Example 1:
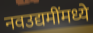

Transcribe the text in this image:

नवउद्यमींमध्ये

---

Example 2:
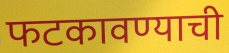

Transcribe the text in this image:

फटकावण्याची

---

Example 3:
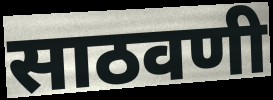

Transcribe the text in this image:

साठवणी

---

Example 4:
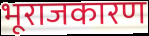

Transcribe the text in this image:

भूराजकारण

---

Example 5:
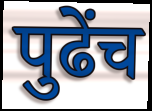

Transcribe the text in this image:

पुढेंच